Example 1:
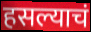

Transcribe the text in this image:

हसल्याचं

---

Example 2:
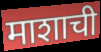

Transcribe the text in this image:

माशाची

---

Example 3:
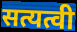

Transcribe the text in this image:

सत्यत्वी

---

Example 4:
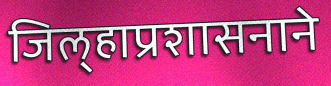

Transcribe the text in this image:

जिल्हाप्रशासनाने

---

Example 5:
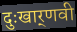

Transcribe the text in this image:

दुःखार्णवी